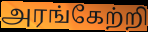
அரங்கேற்றி